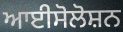
ਆਈਸੋਲੋਸ਼ਨ